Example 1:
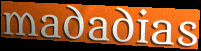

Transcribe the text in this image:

madadias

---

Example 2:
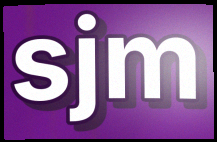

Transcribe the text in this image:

sjm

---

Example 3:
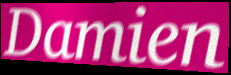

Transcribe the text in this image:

Damien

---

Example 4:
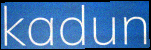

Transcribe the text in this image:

kadun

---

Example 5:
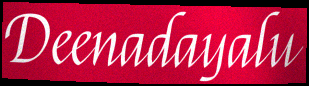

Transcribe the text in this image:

Deenadayalu